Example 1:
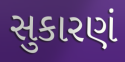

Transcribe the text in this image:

સુકારણં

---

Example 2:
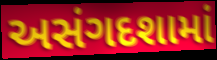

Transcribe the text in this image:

અસંગદશામાં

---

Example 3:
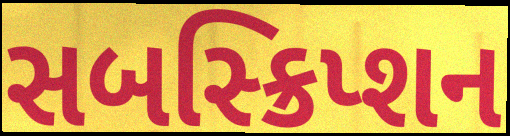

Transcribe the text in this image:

સબસ્ક્રિપ્શન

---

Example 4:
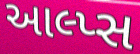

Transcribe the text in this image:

આલ્પ્સ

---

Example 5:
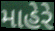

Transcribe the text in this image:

માહેરે